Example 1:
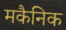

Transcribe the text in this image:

मकैनिक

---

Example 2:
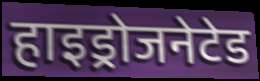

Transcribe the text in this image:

हाइड्रोजनेटेड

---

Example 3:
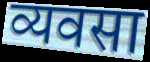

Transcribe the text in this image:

व्यवसा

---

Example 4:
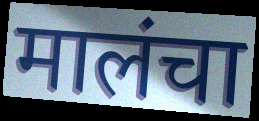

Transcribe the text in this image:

मालंचा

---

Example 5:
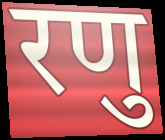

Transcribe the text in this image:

रणु